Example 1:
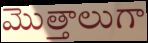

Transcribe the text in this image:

మొత్తాలుగా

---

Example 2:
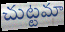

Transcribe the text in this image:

చుట్టమా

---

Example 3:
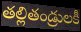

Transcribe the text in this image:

తల్లితండ్రులకీ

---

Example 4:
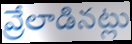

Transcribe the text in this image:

వ్రేలాడినట్లు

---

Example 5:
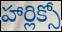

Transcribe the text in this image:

హార్లిక్సో